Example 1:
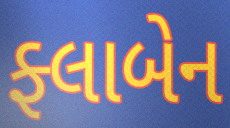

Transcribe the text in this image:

ફ્લાબેન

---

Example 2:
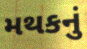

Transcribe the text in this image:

મથકનું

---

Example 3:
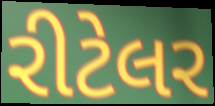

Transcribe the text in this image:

રીટેલર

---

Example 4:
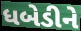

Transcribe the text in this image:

ધબેડીને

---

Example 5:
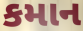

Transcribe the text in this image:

કમાન